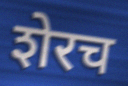
शेरच